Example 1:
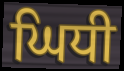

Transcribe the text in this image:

ਘਿਧੀ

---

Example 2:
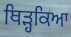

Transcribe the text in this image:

ਥਿੜ੍ਹਕਿਆ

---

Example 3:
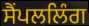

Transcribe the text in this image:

ਸੈਂਪਲਲਿੰਗ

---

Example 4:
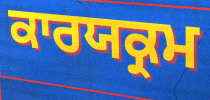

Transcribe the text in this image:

ਕਾਰਯਕ੍ਰਮ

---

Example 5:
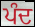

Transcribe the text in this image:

ਪੰਦ